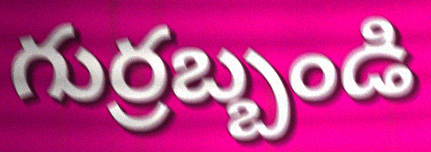
గుర్రబ్బండి